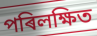
পৰিলক্ষিত